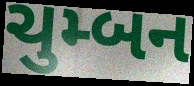
ચુમ્બન